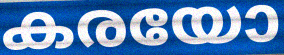
കരയോ